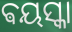
ଵୟସ୍କା